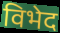
विभेद